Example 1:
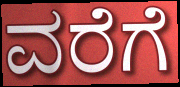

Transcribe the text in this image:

ವರೆಗೆ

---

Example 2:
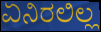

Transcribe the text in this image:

ಏನಿರಲಿಲ್ಲ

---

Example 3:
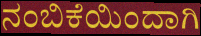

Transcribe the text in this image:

ನಂಬಿಕೆಯಿಂದಾಗಿ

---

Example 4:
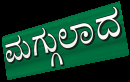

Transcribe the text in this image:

ಮಗ್ಗುಲಾದ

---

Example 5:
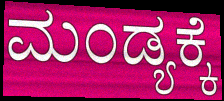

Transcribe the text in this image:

ಮಂಡ್ಯಕ್ಕೆ